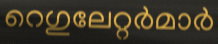
റെഗുലേറ്റർമാർ